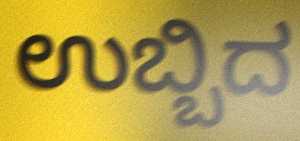
ಉಬ್ಬಿದ